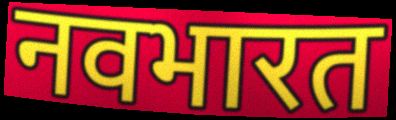
नवभारत